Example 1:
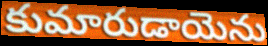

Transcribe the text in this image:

కుమారుడాయెను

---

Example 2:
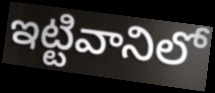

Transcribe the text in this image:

ఇట్టివానిలో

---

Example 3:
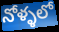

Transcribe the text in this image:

నోళ్ళలో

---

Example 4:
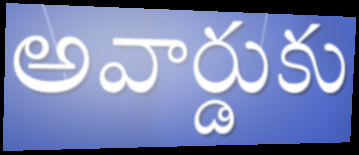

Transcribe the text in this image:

అవార్డుకు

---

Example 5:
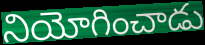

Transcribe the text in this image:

నియోగించాడు